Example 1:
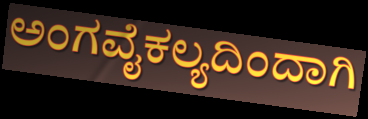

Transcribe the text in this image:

ಅಂಗವೈಕಲ್ಯದಿಂದಾಗಿ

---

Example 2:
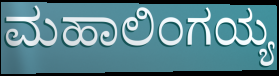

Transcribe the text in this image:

ಮಹಾಲಿಂಗಯ್ಯ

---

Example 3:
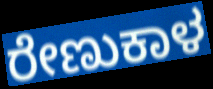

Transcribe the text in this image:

ರೇಣುಕಾಳ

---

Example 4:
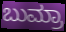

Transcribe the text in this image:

ಬುಮ್ರಾ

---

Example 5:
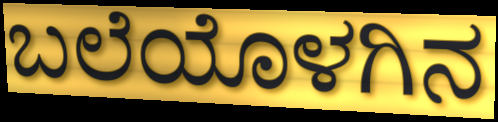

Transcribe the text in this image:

ಬಲೆಯೊಳಗಿನ